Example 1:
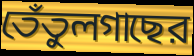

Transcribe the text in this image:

তেঁতুলগাছের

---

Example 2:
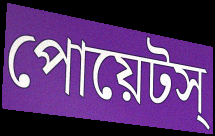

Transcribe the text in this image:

পোয়েটস্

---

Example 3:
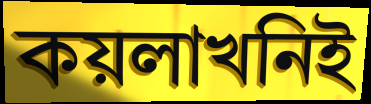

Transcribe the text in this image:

কয়লাখনিই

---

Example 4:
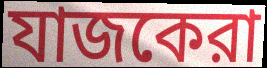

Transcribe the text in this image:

যাজকেরা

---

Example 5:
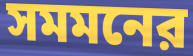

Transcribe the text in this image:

সমমনের